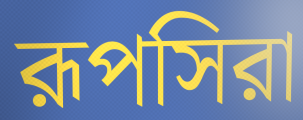
রূপসিরা